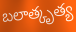
బలాత్కృత్య